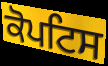
ਕੋਪਟਿਸ